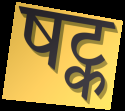
षट्क